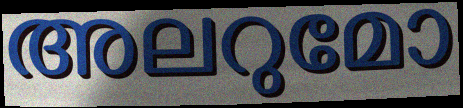
അലറുമോ